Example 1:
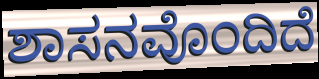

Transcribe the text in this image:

ಶಾಸನವೊಂದಿದೆ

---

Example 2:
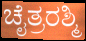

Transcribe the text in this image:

ಚೈತ್ರರಶ್ಮಿ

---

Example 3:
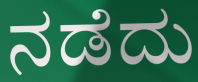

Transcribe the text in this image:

ನಡೆದು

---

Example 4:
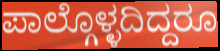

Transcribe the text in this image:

ಪಾಲ್ಗೊಳ್ಳದಿದ್ದರೂ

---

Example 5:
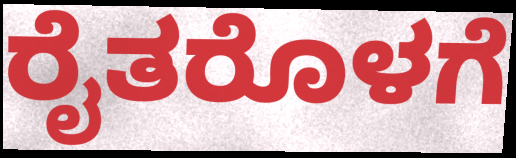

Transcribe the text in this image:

ರೈತರೊಳಗೆ